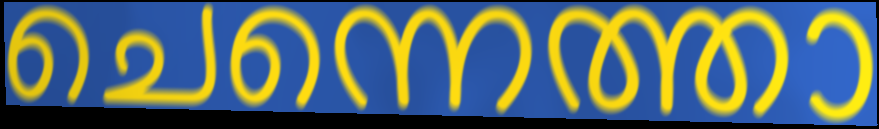
ചെന്നെത്താ